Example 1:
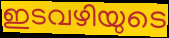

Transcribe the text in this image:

ഇടവഴിയുടെ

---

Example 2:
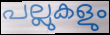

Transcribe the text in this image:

പല്ലുകളും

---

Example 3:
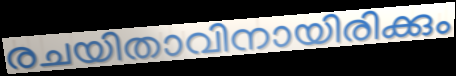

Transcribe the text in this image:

രചയിതാവിനായിരിക്കും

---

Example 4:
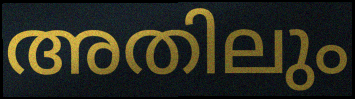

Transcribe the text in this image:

അതിലും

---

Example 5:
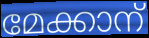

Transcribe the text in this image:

മേക്കാന്